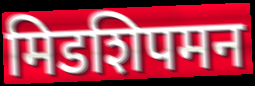
मिडशिपमन